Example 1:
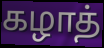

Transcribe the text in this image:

கழாத்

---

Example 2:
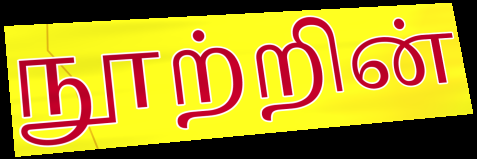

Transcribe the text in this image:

நூற்றின்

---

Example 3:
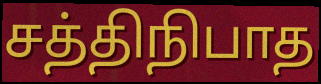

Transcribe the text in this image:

சத்திநிபாத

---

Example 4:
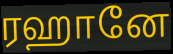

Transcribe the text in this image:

ரஹானே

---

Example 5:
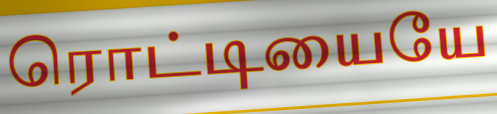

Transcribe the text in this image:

ரொட்டியையே